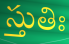
స్తుతిః